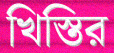
খিস্তির